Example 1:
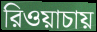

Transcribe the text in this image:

রিওয়াচায়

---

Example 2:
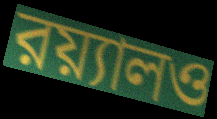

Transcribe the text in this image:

রয়্যালও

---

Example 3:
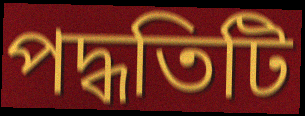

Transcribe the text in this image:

পদ্ধতিটি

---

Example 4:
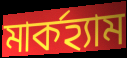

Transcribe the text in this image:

মার্কহ্যাম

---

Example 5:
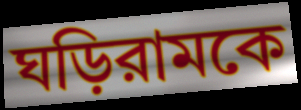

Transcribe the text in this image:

ঘড়িরামকে